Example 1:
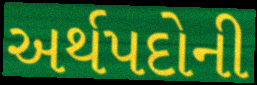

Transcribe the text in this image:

અર્થપદોની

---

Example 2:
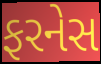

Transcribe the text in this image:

ફરનેસ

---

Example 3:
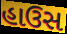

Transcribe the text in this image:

હાઉસ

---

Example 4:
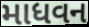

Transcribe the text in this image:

માધવન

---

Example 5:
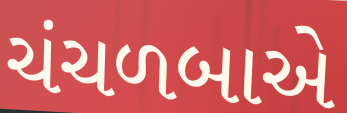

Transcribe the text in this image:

ચંચળબાએ